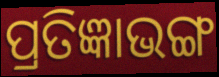
ପ୍ରତିଜ୍ଞାଭଙ୍ଗ